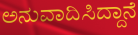
ಅನುವಾದಿಸಿದ್ದಾನೆ